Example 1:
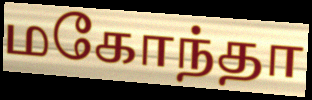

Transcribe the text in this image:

மகோந்தா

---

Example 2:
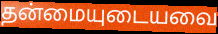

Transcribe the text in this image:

தன்மையுடையவை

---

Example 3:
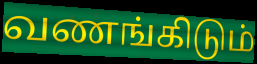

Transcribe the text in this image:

வணங்கிடும்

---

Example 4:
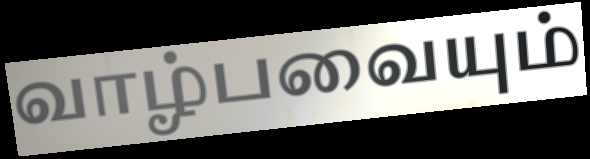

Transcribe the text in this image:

வாழ்பவையும்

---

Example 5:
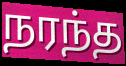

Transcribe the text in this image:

நரந்த